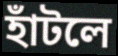
হাঁটলে